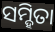
ସମ୍ହିତା